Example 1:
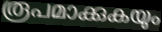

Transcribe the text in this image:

രൂപമാക്കുകയും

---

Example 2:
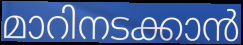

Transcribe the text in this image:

മാറിനടക്കാൻ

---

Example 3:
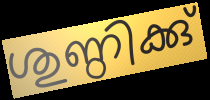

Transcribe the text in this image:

ശുണ്ഠിക്കു്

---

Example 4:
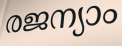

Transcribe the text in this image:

രജന്യാം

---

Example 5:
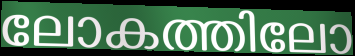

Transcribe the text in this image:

ലോകത്തിലോ